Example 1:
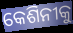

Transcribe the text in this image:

କେଶିନୀକୁ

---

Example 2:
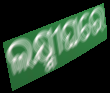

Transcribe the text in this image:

ଲକ୍ଷ୍ମୀଘରେ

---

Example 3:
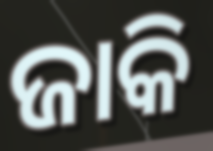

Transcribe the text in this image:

ଜାକି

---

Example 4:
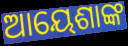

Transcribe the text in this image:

ଆୟେଶାଙ୍କ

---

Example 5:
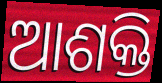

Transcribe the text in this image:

ଆଶକ୍ତି